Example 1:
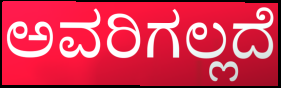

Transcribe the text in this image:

ಅವರಿಗಲ್ಲದೆ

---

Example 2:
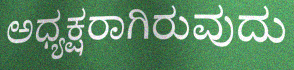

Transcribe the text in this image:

ಅಧ್ಯಕ್ಷರಾಗಿರುವುದು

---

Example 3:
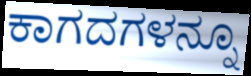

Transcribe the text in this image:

ಕಾಗದಗಳನ್ನೂ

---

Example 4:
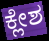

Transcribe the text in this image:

ಕ್ಲೇಶ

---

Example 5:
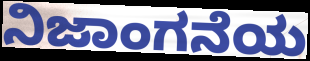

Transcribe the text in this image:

ನಿಜಾಂಗನೆಯ